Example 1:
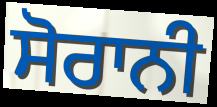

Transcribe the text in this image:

ਸੋਰਾਨੀ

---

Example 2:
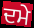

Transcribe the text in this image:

ਦਮੇ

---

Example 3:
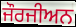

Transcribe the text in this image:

ਜੌਰਜੀਅਨ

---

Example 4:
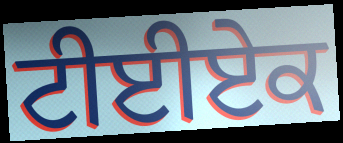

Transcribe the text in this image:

ਟੀਈਏਕ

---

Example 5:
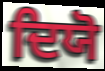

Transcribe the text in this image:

ਦਿਯੋ